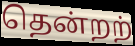
தென்றற்